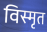
विस्मृत